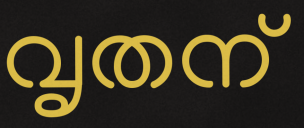
വൃതന്